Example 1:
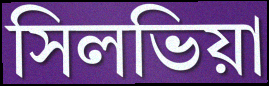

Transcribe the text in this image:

সিলভিয়া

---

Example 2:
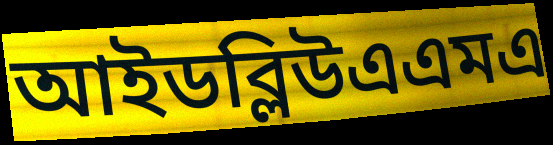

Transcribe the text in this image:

আইডব্লিউএএমএ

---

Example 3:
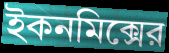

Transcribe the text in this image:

ইকনমিক্সের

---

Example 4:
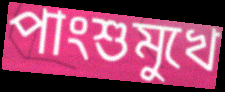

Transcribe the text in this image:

পাংশুমুখে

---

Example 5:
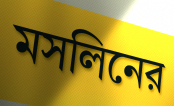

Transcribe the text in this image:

মসলিনের